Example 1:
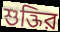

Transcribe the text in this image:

শুক্তির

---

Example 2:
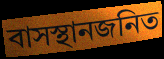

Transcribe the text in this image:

বাসস্থানজনিত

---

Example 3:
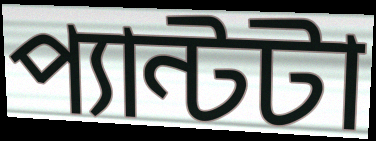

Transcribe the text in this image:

প্যান্টটা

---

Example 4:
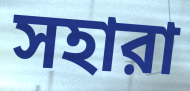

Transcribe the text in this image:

সহারা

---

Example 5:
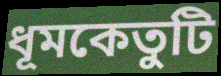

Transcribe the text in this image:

ধূমকেতুটি